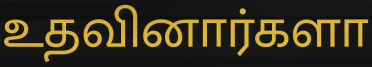
உதவினார்களா